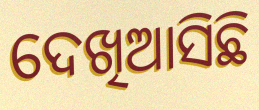
ଦେଖିଆସିଛି